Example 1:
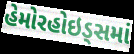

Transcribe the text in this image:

હેમોરહોઇડ્સમાં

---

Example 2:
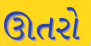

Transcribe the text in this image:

ઊતરો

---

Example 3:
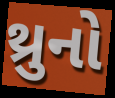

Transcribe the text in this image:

થ્રુનો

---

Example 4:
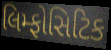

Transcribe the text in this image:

લિમ્ફોસિટિક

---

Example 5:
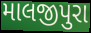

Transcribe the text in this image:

માલજીપુરા